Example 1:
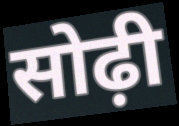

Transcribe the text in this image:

सोढ़ी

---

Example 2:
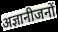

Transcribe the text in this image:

अज्ञानीजनों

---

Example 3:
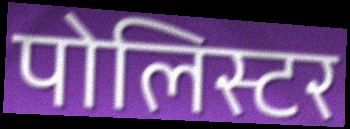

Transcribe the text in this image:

पोलिस्टर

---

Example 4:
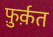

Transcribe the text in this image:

फ़ुर्क़त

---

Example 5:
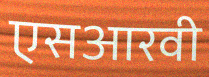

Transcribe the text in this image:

एसआरवी